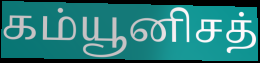
கம்யூனிசத்